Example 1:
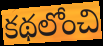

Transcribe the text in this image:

కథలోంచి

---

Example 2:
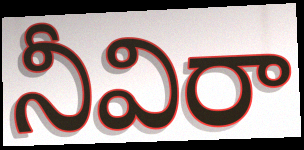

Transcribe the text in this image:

నీవిరా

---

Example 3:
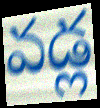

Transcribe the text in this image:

వడ్ల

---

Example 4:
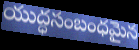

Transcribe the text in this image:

యుద్ధసంబంధమైన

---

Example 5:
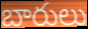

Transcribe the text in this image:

బారులు